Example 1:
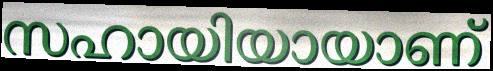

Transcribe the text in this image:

സഹായിയായാണ്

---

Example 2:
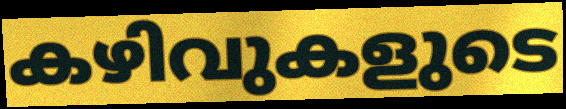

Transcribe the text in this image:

കഴിവുകളുടെ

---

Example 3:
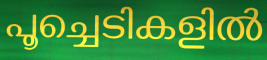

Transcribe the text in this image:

പൂച്ചെടികളിൽ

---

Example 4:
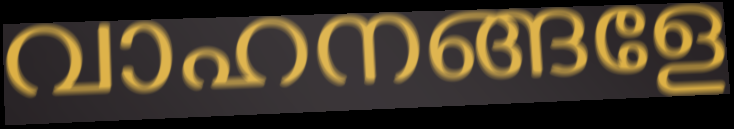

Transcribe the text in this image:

വാഹനങ്ങളേ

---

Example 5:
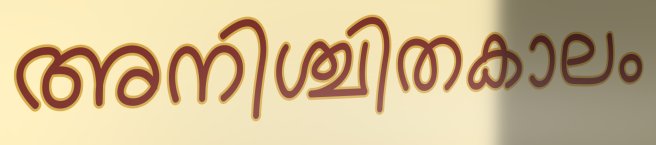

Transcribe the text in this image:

അനിശ്ചിതകാലം